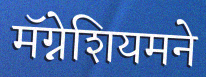
मॅग्नेशियमने